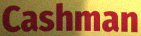
Cashman